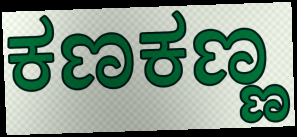
ಕಣಕಣ್ಣ